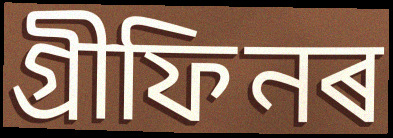
গ্ৰীফিনৰ